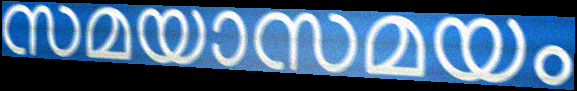
സമയാസമയം